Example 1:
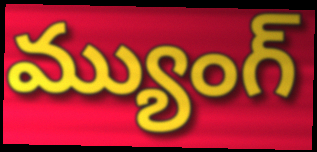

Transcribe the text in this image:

మ్యుంగ్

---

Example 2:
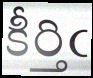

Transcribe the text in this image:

కీర్తిఁ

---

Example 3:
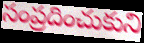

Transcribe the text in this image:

సంప్రదించుకుని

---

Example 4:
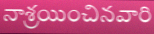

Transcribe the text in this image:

నాశ్రయించినవారి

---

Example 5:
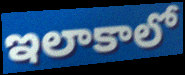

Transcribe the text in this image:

ఇలాకాలో